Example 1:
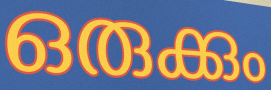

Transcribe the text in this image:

ഒരുക്കും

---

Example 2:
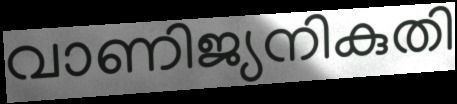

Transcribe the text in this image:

വാണിജ്യനികുതി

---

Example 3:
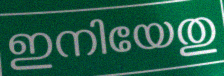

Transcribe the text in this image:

ഇനിയേതു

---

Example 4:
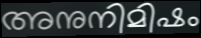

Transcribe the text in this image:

അനുനിമിഷം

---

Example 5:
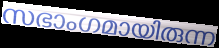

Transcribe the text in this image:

സഭാംഗമായിരുന്ന